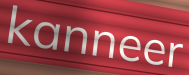
kanneer